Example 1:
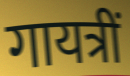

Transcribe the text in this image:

गायत्रीं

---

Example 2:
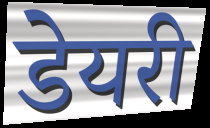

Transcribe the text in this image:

डेयरी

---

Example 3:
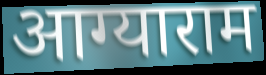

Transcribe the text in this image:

आग्याराम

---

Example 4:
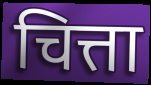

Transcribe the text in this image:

चित्ता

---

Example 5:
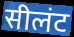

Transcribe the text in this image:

सीलंट